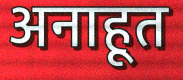
अनाहूत